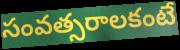
సంవత్సరాలకంటే